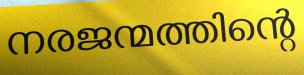
നരജന്മത്തിന്റെ